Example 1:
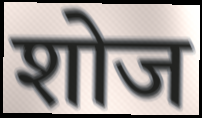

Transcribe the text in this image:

शोज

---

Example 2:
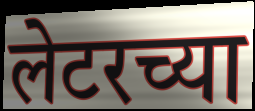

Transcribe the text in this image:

लेटरच्या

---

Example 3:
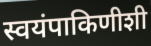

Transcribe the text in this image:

स्वयंपाकिणीशी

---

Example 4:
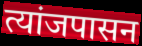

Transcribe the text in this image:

त्यांजपासन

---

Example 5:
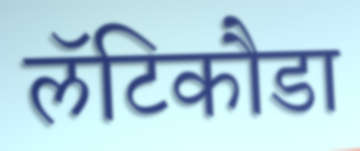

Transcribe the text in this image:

लॅटिकौडा